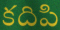
కదిపి